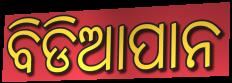
ବିଡିଆପାନ